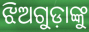
ଝିଅଗୁଡ଼ାଙ୍କୁ